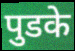
पुडके